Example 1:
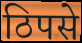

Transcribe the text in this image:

ठिपसे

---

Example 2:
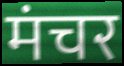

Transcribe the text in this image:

मंचर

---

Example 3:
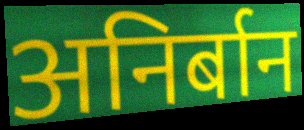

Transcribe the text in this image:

अनिर्बान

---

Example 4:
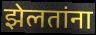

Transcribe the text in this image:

झेलतांना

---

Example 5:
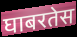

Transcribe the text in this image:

घाबरतेस